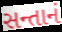
સન્તાનં